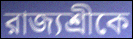
রাজ্যশ্রীকে